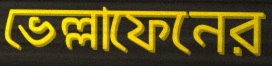
ভেল্লাফেনের